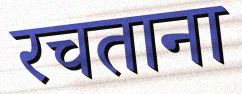
रचताना